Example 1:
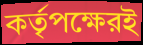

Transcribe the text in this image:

কর্তৃপক্ষেরই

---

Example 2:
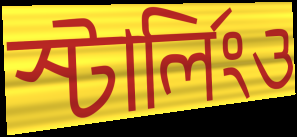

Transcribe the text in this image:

স্টার্লিংও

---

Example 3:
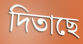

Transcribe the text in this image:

দিতাছে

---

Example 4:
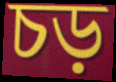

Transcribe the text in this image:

চড়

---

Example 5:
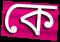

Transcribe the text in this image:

কে